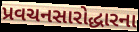
પ્રવચનસારોદ્ધારના